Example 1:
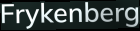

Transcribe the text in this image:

Frykenberg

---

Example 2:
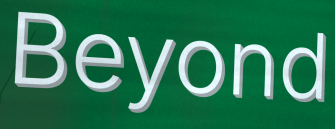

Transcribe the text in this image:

Beyond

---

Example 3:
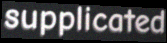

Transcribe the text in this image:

supplicated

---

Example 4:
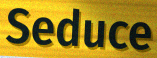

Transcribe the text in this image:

Seduce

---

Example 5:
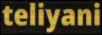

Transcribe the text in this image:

teliyani